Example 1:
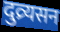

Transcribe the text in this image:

दुव्र्यसन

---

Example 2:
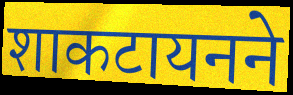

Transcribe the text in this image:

शाकटायनने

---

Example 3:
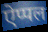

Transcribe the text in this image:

ऐप्पल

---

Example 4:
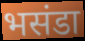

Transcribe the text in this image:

भसंडा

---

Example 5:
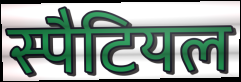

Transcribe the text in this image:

स्पैटियल